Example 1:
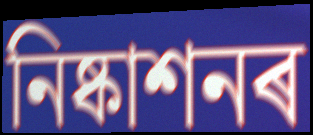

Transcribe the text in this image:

নিষ্কাশনৰ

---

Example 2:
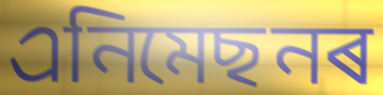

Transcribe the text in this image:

এনিমেছনৰ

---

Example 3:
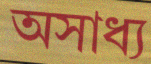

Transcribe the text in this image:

অসাধ্য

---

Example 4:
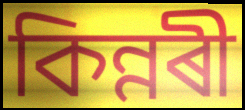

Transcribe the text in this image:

কিন্নৰী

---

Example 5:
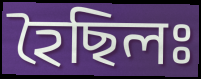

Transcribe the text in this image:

হৈছিলঃ